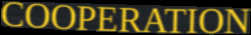
COOPERATION